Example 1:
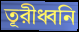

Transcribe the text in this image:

তূরীধ্বনি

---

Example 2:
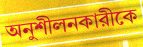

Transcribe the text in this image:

অনুশীলনকারীকে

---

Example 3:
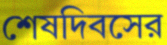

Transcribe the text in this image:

শেষদিবসের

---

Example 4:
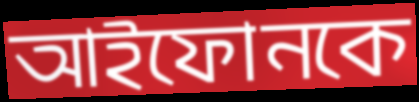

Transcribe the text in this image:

আইফোনকে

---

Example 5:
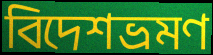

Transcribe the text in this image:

বিদেশভ্রমণ